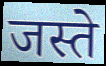
जस्ते